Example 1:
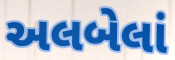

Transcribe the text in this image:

અલબેલાં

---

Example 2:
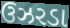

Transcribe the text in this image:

ઉઝરડા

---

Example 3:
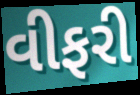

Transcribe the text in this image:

વીફરી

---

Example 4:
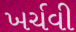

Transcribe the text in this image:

ખર્ચવી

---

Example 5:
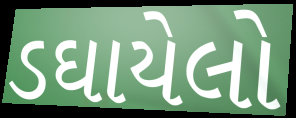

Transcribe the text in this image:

ડઘાયેલો